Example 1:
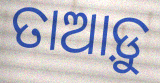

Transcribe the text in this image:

ତାଆଡ଼ୁ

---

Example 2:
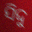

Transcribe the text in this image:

ସିଦ୍ଦୁ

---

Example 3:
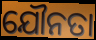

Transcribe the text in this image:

ଯୌନତା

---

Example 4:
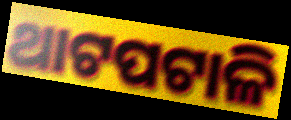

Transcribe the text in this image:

ଥାଟପଟାଳି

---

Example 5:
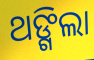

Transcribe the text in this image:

ଥଙ୍ଗିଲା